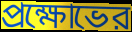
প্রক্ষোভের